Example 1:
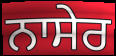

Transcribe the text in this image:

ਨਾਸੇਰ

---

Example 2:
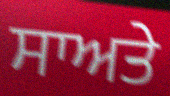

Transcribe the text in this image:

ਸਾਅਤੇ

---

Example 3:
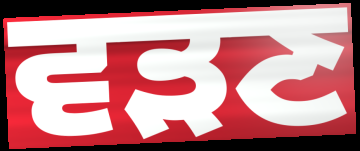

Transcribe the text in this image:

ਵੜਣ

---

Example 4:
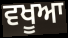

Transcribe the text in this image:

ਵਖੂਆ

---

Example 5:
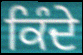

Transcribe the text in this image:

ਕਿੰਦੇ